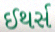
ઈથર્સ